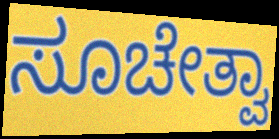
ಸೂಚೇತ್ವಾ